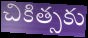
చికిత్సకు